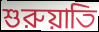
শুরুয়াতি